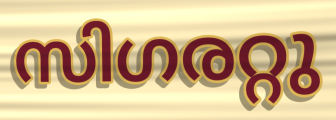
സിഗരറ്റു